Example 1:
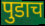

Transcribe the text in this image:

पुडाच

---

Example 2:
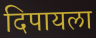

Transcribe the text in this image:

दिपायला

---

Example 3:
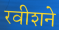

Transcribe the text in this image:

रवीशने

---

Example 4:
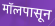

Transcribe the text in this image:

मॉलपासून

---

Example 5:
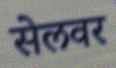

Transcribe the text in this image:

सेलवर